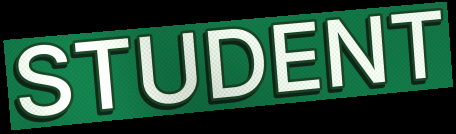
STUDENT